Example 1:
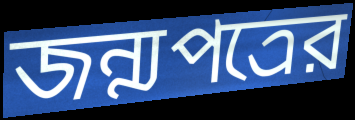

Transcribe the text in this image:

জন্মপত্রের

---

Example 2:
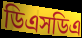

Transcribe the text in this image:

ডিএসডিএ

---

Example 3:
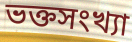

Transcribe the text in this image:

ভক্তসংখ্যা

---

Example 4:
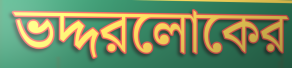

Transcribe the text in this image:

ভদ্দরলোকের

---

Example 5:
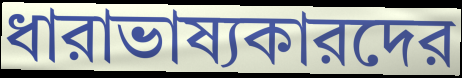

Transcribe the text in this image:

ধারাভাষ্যকারদের